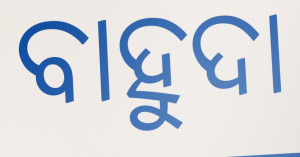
ବାହୁଦା